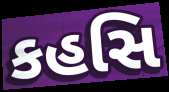
કહસિ